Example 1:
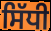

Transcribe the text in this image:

ਸਿੱਧੀ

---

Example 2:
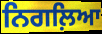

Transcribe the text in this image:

ਨਿਗਲ਼ਿਆ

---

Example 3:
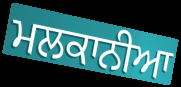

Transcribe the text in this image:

ਮਲਕਾਨੀਆ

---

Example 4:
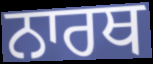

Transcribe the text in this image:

ਨਾਰਥ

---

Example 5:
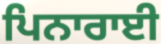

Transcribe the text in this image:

ਪਿਨਾਰਾਈ